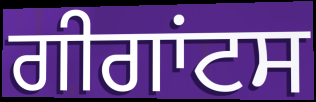
ਗੀਗਾਂਟਸ